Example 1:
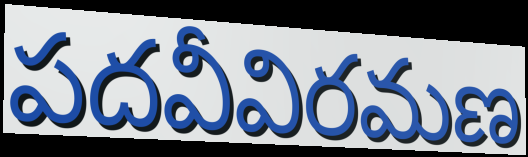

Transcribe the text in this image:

పదవీవిరమణ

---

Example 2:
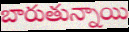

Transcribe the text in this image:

బారుతున్నాయి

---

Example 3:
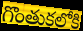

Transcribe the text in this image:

గొంతుకలోకి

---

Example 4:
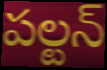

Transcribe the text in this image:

పల్టన్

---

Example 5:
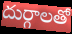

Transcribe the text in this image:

దుర్గాలతో